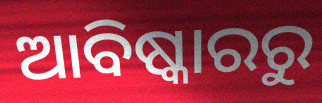
ଆବିଷ୍କାରରୁ